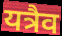
यत्रैव